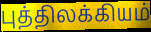
புத்திலக்கியம்